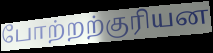
போற்றற்குரியன